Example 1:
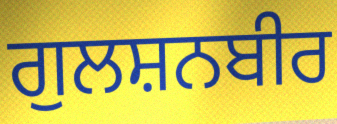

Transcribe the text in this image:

ਗੁਲਸ਼ਨਬੀਰ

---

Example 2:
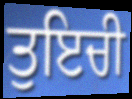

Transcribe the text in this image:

ਤੁਇਚੀ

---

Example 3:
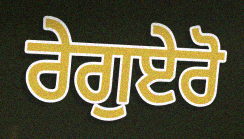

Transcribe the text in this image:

ਰੇਗੁਏਰੋ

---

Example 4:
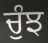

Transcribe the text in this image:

ਚੁੰਝ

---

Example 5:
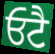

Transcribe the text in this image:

ਓਟੈ